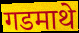
गडमाथे